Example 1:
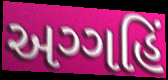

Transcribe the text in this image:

અગ્ગહિં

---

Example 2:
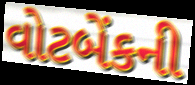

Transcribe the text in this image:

વોટબેંકની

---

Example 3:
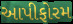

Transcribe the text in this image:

આપીફોરમ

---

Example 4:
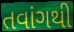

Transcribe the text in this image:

તવાંગથી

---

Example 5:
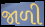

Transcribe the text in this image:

જાળી